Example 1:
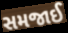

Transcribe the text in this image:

સમજાઈ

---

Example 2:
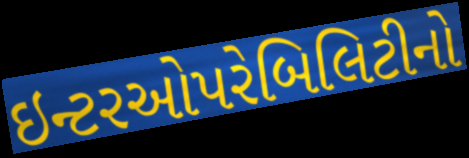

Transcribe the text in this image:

ઇન્ટરઓપરેબિલિટીનો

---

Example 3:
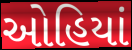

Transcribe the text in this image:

ઓહિયાં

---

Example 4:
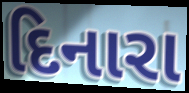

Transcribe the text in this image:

દિનારા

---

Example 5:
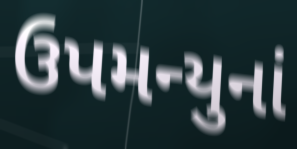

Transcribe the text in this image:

ઉપમન્યુનાં